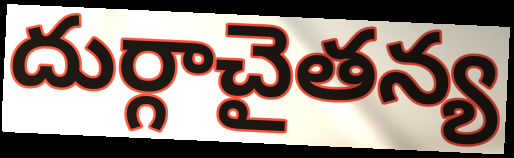
దుర్గాచైతన్య